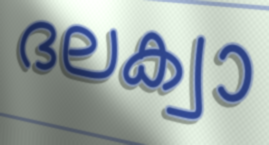
ദലക്വാ